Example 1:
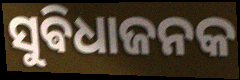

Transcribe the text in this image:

ସୁଵିଧାଜନକ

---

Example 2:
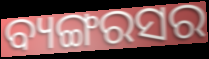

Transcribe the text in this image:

ବ୍ୟଙ୍ଗରସର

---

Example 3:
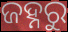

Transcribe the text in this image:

ଜହ୍ନରୁ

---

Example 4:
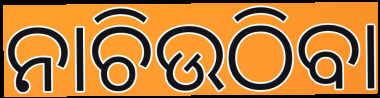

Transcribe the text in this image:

ନାଚିଉଠିବା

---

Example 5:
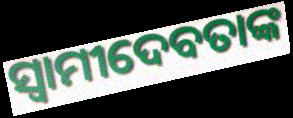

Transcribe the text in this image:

ସ୍ୱାମୀଦେବତାଙ୍କ